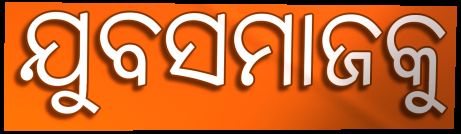
ଯୁବସମାଜକୁ